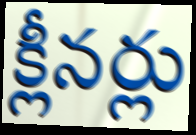
క్లీనర్లు